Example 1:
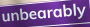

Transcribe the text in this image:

unbearably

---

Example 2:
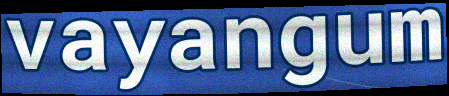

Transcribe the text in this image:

vayangum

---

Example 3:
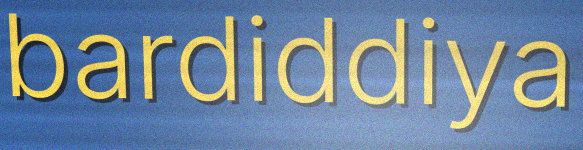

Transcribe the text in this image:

bardiddiya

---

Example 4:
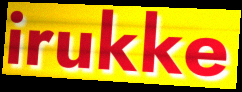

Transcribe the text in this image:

irukke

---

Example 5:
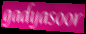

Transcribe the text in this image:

gadyasoor